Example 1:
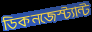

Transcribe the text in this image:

ডিকনজেস্ট্যান্ট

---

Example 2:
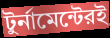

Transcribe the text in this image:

টুর্নামেন্টেরই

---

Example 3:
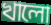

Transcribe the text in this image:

খালো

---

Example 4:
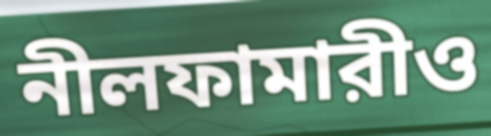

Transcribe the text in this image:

নীলফামারীও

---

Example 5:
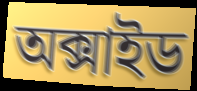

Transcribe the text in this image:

অক্সাইড